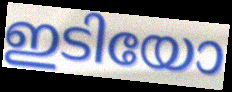
ഇടിയോ